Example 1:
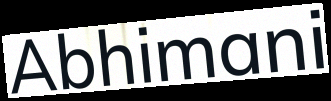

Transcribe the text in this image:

Abhimani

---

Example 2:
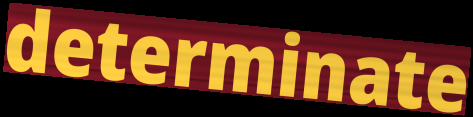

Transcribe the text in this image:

determinate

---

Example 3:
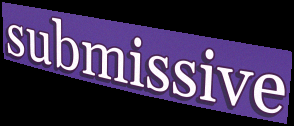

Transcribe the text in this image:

submissive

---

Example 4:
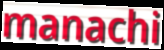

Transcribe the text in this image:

manachi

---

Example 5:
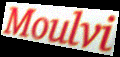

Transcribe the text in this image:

Moulvi